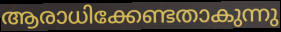
ആരാധിക്കേണ്ടതാകുന്നു